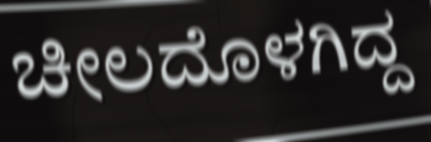
ಚೀಲದೊಳಗಿದ್ದ